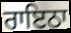
ਰਾਇਠਾ